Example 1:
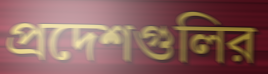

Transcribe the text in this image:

প্রদেশগুলির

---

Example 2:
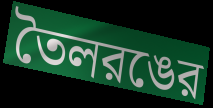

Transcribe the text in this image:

তৈলরঙের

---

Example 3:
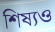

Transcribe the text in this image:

শিষ্যও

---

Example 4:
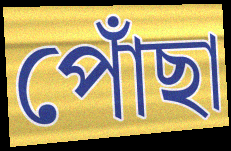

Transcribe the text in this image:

পোঁছা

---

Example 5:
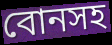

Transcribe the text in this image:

বোনসহ